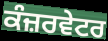
ਕੰਜ਼ਰਵੇਟਰ